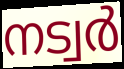
നട്വർ